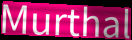
Murthal